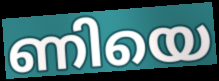
ണിയെ